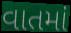
વાતમાં